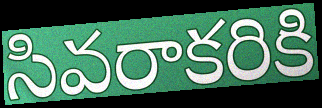
సివరాకరికి